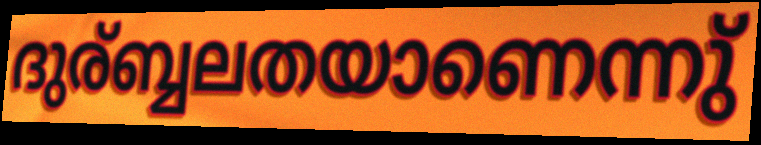
ദുര്ബ്ബലതയാണെന്നു്